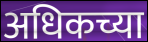
अधिकच्या